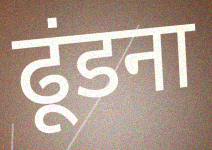
ढूंडना